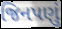
જિનપણું